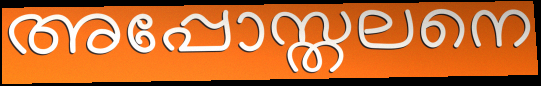
അപ്പോസ്തലനെ